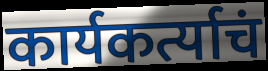
कार्यकर्त्याचं